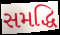
સમદ્ધિ